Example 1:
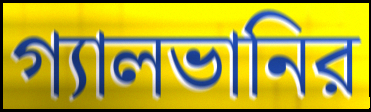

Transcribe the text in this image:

গ্যালভানির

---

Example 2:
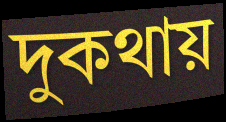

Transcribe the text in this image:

দুকথায়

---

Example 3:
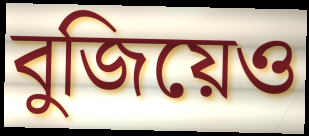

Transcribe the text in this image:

বুজিয়েও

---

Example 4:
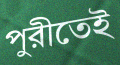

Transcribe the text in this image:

পুরীতেই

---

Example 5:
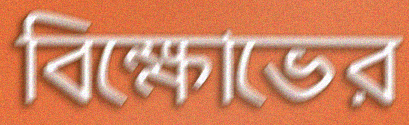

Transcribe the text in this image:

বিক্ষোভের